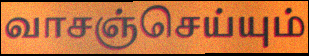
வாசஞ்செய்யும்